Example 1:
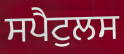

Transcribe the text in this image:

ਸਪੈਟੁਲਸ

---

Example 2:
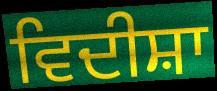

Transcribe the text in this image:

ਵਿਦੀਸ਼ਾ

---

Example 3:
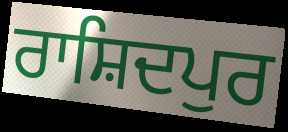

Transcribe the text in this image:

ਰਾਸ਼ਿਦਪੁਰ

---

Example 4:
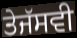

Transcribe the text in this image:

ਤੇਜੱਸਵੀ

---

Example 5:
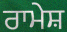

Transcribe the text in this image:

ਰਾਮੇਸ਼